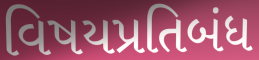
વિષયપ્રતિબંધ